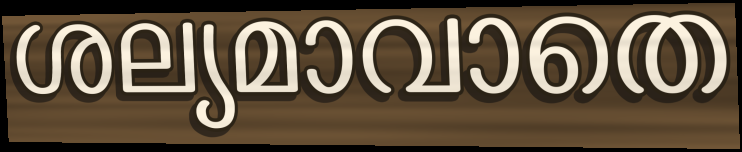
ശല്യമാവാതെ